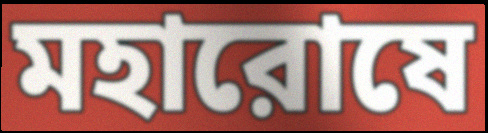
মহারোষে